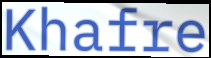
Khafre